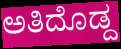
ಅತಿದೊಡ್ದ